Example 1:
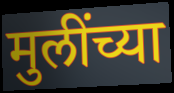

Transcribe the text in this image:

मुलींच्या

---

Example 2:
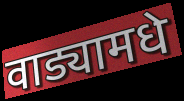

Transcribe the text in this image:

वाड्यामधे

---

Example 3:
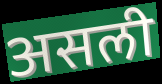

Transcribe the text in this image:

असली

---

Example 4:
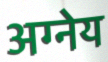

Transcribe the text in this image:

अग्नेय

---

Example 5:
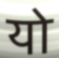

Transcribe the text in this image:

यो